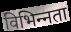
विभिन्‍नता